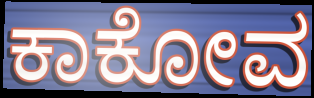
ಕಾಕೋವ